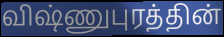
விஷ்ணுபுரத்தின்